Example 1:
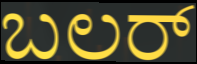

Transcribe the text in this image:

ಬಲರ್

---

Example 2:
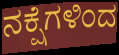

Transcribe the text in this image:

ನಕ್ಷೆಗಳಿಂದ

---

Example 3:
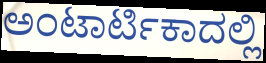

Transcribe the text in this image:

ಅಂಟಾರ್ಟಿಕಾದಲ್ಲಿ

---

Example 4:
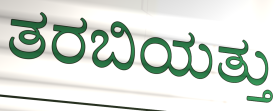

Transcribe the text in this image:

ತರಬಿಯತ್ತು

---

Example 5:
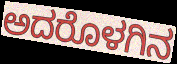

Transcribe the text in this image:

ಅದರೊಳಗಿನ